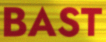
BAST